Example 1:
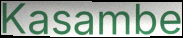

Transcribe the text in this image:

Kasambe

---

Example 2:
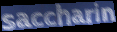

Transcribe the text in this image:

saccharin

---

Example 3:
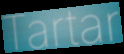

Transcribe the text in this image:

Tartar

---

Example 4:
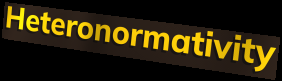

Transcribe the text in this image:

Heteronormativity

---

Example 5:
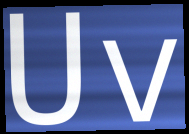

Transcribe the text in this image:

Uv